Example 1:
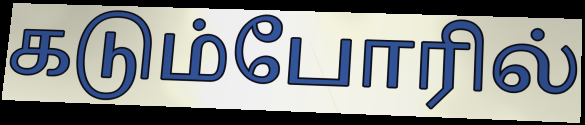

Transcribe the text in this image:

கடும்போரில்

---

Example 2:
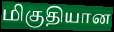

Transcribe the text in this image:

மிகுதியான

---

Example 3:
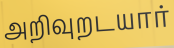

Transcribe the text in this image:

அறிவுறடயார்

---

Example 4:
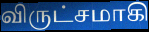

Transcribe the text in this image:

விருட்சமாகி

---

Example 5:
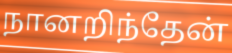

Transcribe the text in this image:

நானறிந்தேன்